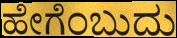
ಹೇಗೆಂಬುದು